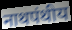
नाथपंथीय